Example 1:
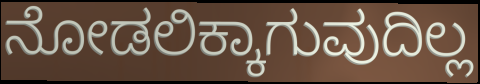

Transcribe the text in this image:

ನೋಡಲಿಕ್ಕಾಗುವುದಿಲ್ಲ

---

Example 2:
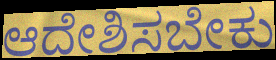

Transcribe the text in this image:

ಆದೇಶಿಸಬೇಕು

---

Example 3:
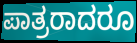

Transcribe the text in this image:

ಪಾತ್ರರಾದರೂ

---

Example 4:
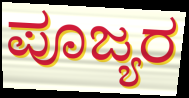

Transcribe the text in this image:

ಪೂಜ್ಯರ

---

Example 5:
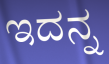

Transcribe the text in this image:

ಇದನ್ನ